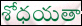
శోధయతా